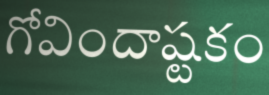
గోవిందాష్టకం